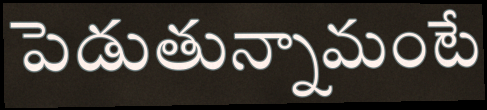
పెడుతున్నామంటే